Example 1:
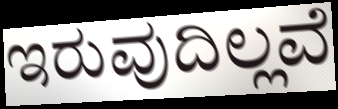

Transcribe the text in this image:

ಇರುವುದಿಲ್ಲವೆ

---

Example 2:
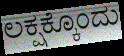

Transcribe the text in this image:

ಲಕ್ಷಕ್ಕೊಂದು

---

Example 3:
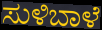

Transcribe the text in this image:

ಸುಳಿಬಾಳೆ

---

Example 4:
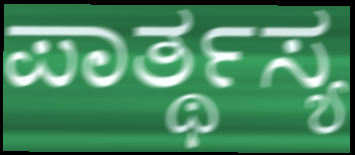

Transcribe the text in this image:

ಪಾರ್ತ್ಥಸ್ಯ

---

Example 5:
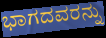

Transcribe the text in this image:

ಭಾಗದವರನ್ನು